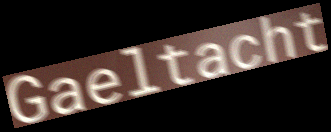
Gaeltacht